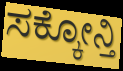
ಸಕ್ಕೋನ್ತಿ